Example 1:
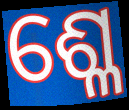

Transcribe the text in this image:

ଶ୍ଳେ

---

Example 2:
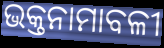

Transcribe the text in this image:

ଭକ୍ତନାମାବଳୀ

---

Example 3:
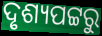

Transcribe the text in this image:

ଦୃଶ୍ୟପଟ୍ଟରୁ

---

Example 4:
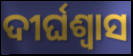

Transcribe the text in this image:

ଦୀର୍ଘଶ୍ବାସ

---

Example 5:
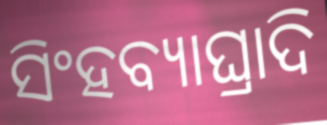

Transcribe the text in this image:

ସିଂହବ୍ୟାଘ୍ରାଦି